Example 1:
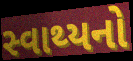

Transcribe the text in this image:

સ્વાથ્યનો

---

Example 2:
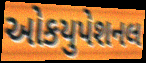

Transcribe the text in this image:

ઓકયુપેશનલ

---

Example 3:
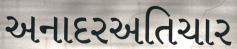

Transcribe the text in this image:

અનાદરઅતિચાર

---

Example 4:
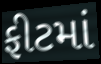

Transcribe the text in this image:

ફીટમાં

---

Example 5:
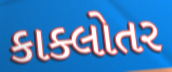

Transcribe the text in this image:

કાક્લોતર